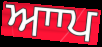
ਆਾਪ